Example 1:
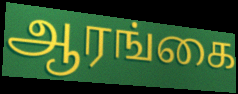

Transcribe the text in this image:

ஆரங்கை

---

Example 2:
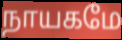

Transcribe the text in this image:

நாயகமே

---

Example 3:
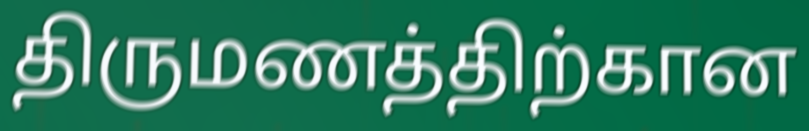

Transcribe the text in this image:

திருமணத்திற்கான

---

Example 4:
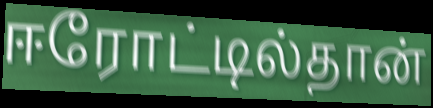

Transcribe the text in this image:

ஈரோட்டில்தான்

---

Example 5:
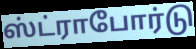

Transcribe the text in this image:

ஸ்ட்ராபோர்டு